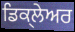
ਡਿਕ੍ਲੇਅਰ